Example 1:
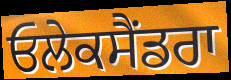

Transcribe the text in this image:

ਓਲੇਕਸੈਂਡਰਾ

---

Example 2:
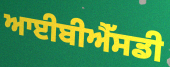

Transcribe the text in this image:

ਆਈਬੀਐੱਸਡੀ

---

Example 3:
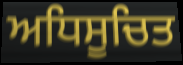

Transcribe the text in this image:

ਅਧਿਸੂਚਿਤ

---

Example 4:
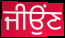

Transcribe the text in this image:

ਜੀਉਂਣ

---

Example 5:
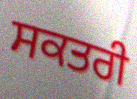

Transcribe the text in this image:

ਸਕਤਰੀ